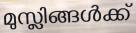
മുസ്ലിങ്ങൾക്ക്